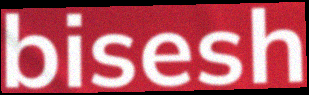
bisesh